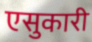
एसुकारी